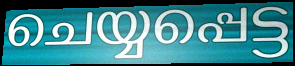
ചെയ്യപ്പെട്ട